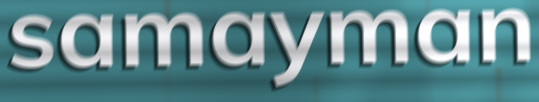
samayman